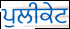
ਪੁਲੀਕੇਟ